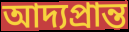
আদ্যপ্রান্ত